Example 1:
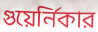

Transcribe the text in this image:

গুয়ের্নিকার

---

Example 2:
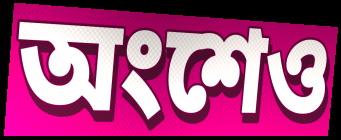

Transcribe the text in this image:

অংশেও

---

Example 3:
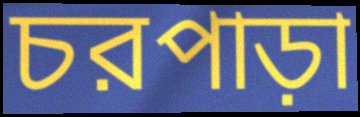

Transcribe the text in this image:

চরপাড়া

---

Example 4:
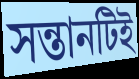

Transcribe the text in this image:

সন্তানটিই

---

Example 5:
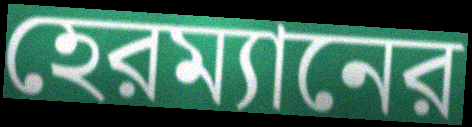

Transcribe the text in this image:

হেরম্যানের